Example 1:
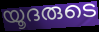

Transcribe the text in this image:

യൂദരുടെ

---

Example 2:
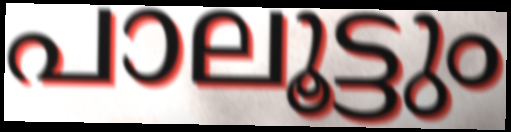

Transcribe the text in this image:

പാലൂട്ടും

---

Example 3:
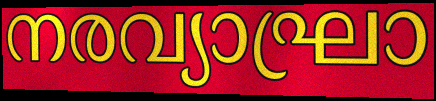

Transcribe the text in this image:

നരവ്യാഘ്രാ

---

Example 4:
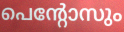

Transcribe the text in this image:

പെന്റോസും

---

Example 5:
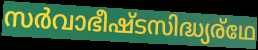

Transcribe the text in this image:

സർവാഭീഷ്ടസിദ്ധ്യര്ഥേ